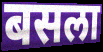
बसला